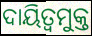
ଦାୟିତ୍ୱମୁକ୍ତ